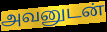
அவனுடன்